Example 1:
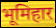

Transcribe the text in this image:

भूमिहार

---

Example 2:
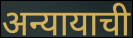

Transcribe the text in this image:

अन्यायाची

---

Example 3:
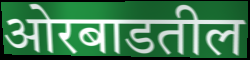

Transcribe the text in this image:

ओरबाडतील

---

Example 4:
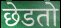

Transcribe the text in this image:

छेडतो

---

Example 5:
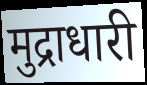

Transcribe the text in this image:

मुद्राधारी